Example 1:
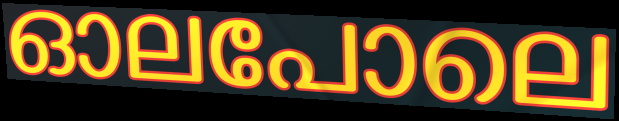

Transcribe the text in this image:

ഓലപോലെ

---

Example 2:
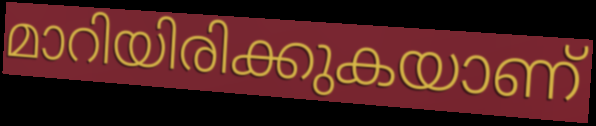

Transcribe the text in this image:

മാറിയിരിക്കുകയാണ്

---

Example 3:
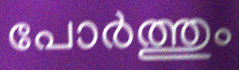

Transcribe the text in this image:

പോർത്തും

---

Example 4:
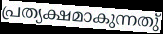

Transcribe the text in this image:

പ്രത്യക്ഷമാകുന്നതു്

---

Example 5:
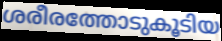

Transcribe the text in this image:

ശരീരത്തോടുകൂടിയ